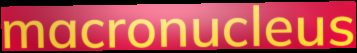
macronucleus